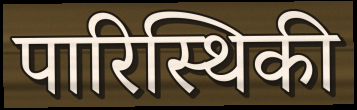
पारिस्थिकी